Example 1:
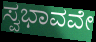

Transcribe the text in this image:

ಸ್ವಭಾವವೇ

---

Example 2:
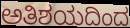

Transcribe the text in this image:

ಅತಿಶಯದಿಂದ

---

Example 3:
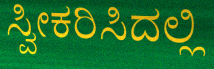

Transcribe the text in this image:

ಸ್ವೀಕರಿಸಿದಲ್ಲಿ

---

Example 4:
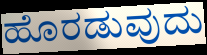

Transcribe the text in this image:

ಹೊರಡುವುದು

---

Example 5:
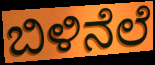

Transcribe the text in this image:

ಬಿಳಿನೆಲೆ